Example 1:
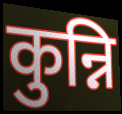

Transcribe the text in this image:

कुन्नि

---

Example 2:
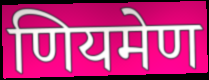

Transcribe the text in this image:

णियमेण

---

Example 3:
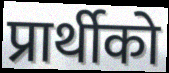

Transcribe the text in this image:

प्रार्थीको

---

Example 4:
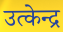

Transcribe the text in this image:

उत्केन्द्र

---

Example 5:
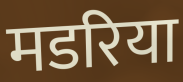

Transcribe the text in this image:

मडरिया